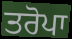
ਤਰੋਪਾ